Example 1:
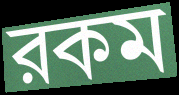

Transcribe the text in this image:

রকম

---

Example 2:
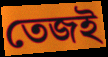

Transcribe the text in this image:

তেজই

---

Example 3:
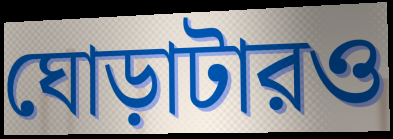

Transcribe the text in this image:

ঘোড়াটারও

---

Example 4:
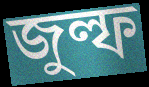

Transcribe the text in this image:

জুল্ফ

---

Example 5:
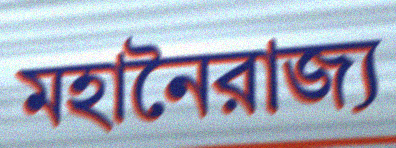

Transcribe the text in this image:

মহানৈরাজ্য